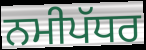
ਨਮੀਪੱਧਰ